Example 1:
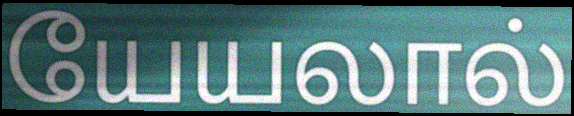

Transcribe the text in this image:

யேயலால்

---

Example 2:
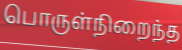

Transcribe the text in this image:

பொருள்நிறைந்த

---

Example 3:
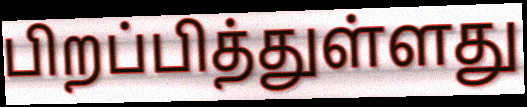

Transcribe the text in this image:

பிறப்பித்துள்ளது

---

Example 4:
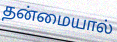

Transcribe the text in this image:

தன்மையால்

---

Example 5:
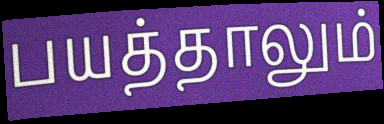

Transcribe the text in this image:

பயத்தாலும்